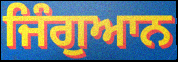
ਜਿੰਗੁਆਨ